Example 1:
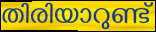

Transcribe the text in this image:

തിരിയാറുണ്ട്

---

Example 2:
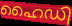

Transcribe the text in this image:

ഹൈഡി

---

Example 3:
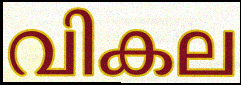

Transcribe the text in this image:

വികല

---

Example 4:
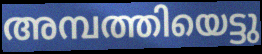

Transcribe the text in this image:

അമ്പത്തിയെട്ടു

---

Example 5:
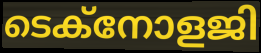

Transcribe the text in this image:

ടെക്നോളജി